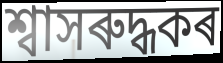
শ্বাসৰুদ্ধকৰ